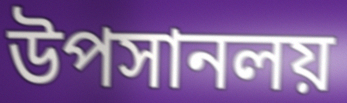
উপসানলয়